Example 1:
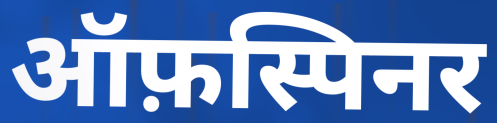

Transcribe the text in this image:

ऑफ़स्पिनर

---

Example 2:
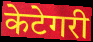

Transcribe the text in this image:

केटेगरी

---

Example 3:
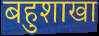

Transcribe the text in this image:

बहुशाखा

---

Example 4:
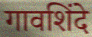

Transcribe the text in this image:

गावशिंदे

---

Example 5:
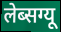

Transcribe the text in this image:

लेब्सग्यू